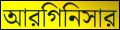
আরগিনিসার